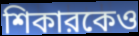
শিকারকেও